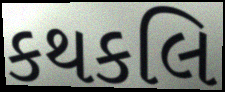
કથકલિ